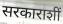
सरकाराशीं